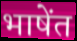
भाषेंत